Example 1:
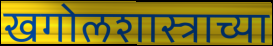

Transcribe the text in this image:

खगोलशास्त्राच्या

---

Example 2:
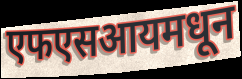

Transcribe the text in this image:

एफएसआयमधून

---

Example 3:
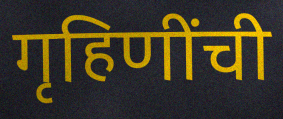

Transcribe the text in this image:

गृहिणींची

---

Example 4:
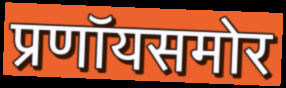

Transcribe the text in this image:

प्रणॉयसमोर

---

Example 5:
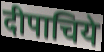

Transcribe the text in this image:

दीपाचिये